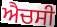
ਐਚਸੀ